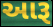
આરૂ